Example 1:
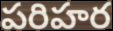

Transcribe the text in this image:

పరిహర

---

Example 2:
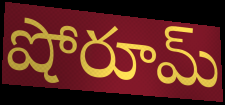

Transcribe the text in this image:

షోరూమ్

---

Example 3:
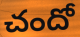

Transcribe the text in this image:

చందో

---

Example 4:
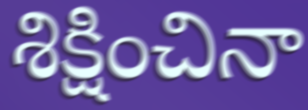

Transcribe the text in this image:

శిక్షించినా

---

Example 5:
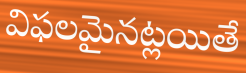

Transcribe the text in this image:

విఫలమైనట్లయితే